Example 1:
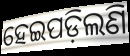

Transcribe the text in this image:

ହେଇପଡ଼ିଲଣି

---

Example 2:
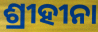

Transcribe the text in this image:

ଶ୍ରୀହୀନା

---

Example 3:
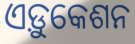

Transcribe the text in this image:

ଏଡ଼ୁକେଶନ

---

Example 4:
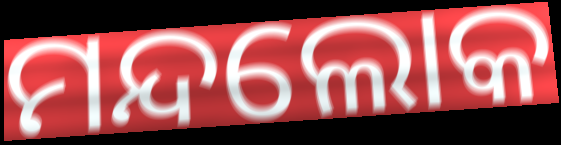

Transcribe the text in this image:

ମନ୍ଦଲୋକ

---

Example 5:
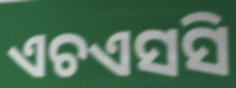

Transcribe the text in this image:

ଏଚଏସସି